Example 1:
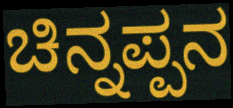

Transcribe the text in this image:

ಚಿನ್ನಪ್ಪನ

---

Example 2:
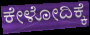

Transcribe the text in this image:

ಕೇಳೋದಿಕ್ಕೆ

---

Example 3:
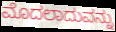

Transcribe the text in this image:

ಮೊದಲಾದುವನ್ನು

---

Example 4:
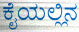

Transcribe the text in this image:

ಕೈಯಲ್ಲಿನ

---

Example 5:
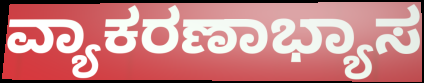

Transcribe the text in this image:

ವ್ಯಾಕರಣಾಭ್ಯಾಸ